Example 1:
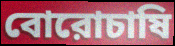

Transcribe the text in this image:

বোরোচাষি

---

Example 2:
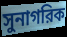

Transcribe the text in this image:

সুনাগরিক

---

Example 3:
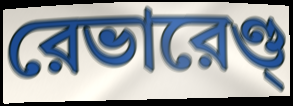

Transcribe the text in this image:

রেভারেণ্ড্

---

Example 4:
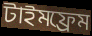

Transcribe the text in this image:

টাইমফ্রেম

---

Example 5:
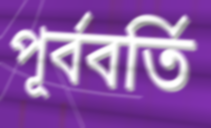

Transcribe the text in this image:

পূর্ববর্তি